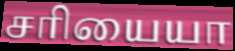
சரியையா